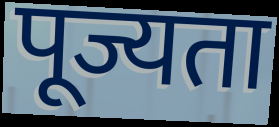
पूज्यता